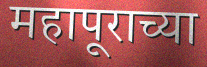
महापूराच्या